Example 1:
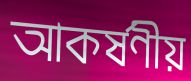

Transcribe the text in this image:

আকৰ্ষণীয়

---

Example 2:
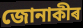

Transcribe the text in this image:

জোনাকীৰ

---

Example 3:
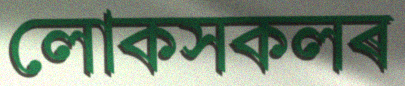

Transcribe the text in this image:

লোকসকলৰ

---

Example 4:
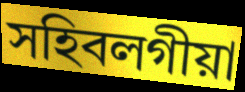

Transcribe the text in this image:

সহিবলগীয়া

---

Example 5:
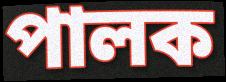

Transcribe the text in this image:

পালক